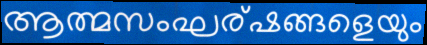
ആത്മസംഘര്ഷങ്ങളെയും